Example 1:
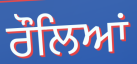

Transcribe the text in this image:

ਰੌਲਿਆਂ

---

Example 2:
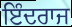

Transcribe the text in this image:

ਇੰਦਰਾਜ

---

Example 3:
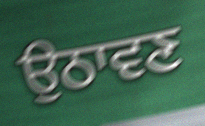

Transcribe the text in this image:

ਉਠਾਵਣ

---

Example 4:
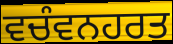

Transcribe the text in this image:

ਵਚੰਵਨਹਰਤ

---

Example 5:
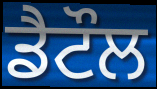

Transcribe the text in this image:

ਡੈਟੌਲ